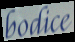
bodice